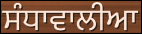
ਸੰਧਾਵਾਲੀਆ